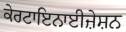
ਕੇਰਟਾਇਨਾਈਜ਼ੇਸ਼ਨ